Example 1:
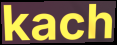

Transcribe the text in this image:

kach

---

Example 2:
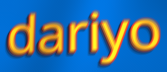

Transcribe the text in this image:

dariyo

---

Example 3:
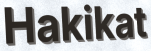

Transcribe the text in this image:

Hakikat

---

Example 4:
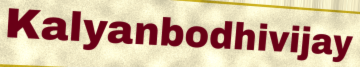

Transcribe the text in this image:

Kalyanbodhivijay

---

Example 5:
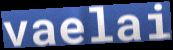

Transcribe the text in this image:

vaelai